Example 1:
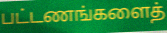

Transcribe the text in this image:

பட்டணங்களைத்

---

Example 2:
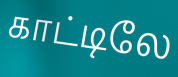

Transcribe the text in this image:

காட்டிலே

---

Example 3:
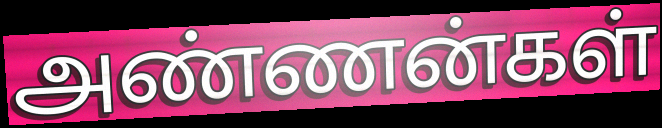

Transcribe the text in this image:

அண்ணன்கள்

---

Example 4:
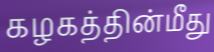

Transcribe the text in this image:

கழகத்தின்மீது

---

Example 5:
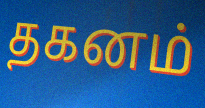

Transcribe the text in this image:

தகனம்